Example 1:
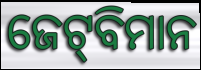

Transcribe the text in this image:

ଜେଟ୍‍ବିମାନ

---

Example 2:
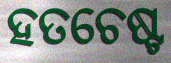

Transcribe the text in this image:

ହତଚେଷ୍ଟ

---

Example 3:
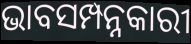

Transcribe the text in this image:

ଭାବସମ୍ପନ୍ନକାରୀ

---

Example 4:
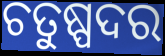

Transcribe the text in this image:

ଚତୁଷ୍ପଦର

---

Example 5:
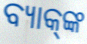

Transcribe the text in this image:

ବ୍ୟାକ୍‍ଙ୍କ